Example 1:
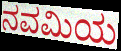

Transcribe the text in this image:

ನವಮಿಯ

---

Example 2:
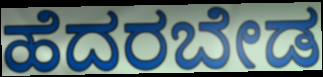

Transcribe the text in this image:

ಹೆದರಬೇಡ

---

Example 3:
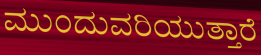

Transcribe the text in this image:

ಮುಂದುವರಿಯುತ್ತಾರೆ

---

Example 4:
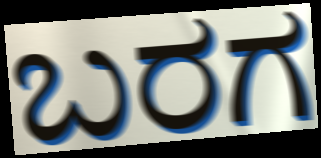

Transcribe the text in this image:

ಬರಗ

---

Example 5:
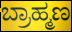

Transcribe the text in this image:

ಬ್ರಾಹ್ಮಣ